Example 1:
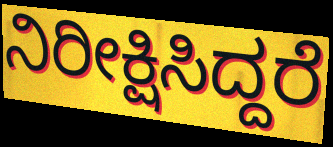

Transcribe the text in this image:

ನಿರೀಕ್ಷಿಸಿದ್ದರೆ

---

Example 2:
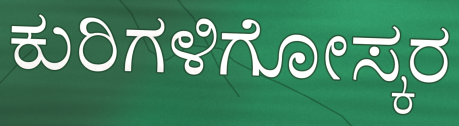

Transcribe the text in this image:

ಕುರಿಗಳಿಗೋಸ್ಕರ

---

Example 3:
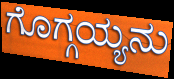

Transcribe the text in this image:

ಗೊಗ್ಗಯ್ಯನು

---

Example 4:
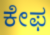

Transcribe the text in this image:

ಕೇಫ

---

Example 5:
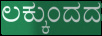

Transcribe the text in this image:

ಲಕ್ಕುಂದದ